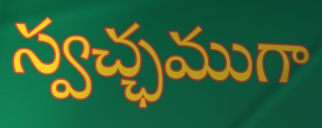
స్వచ్ఛముగా